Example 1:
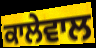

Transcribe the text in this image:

ਕਾਲੇਵਾਲ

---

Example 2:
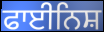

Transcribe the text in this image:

ਫਾਈਨਿਸ਼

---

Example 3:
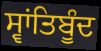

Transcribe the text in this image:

ਸ੍ਵਾਂਤਿਬੂੰਦ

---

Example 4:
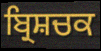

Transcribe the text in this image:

ਬ੍ਰਿਸ਼ਚਕ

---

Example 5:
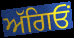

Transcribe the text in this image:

ਅੱਗਿਓਂ